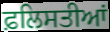
ਫ਼ਲਿਸਤੀਆਂ